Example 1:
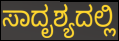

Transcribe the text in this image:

ಸಾದೃಶ್ಯದಲ್ಲಿ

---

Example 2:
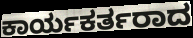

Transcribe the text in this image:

ಕಾರ್ಯಕರ್ತರಾದ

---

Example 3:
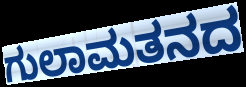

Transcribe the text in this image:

ಗುಲಾಮತನದ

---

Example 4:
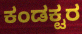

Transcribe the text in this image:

ಕಂಡಕ್ಟರ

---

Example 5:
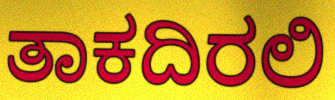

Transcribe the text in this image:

ತಾಕದಿರಲಿ